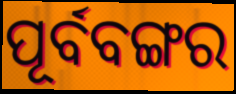
ପୂର୍ବବଙ୍ଗର